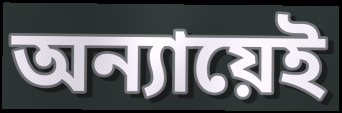
অন্যায়েই